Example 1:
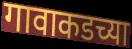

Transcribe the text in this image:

गावाकडच्या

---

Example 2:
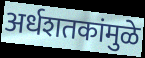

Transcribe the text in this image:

अर्धशतकांमुळे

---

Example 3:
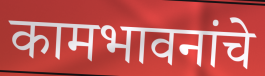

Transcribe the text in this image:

कामभावनांचे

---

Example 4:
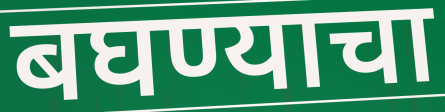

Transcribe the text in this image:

बघण्याचा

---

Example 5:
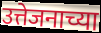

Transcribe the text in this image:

उत्तेजनाच्या